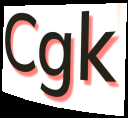
Cgk